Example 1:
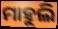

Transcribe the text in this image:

ମାହୁଲି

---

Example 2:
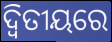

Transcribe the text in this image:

ଦ୍ଵିତୀୟରେ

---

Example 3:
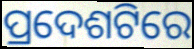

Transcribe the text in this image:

ପ୍ରଦେଶଟିରେ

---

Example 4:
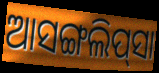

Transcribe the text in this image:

ଆସଙ୍ଗଲିପ୍‌ସା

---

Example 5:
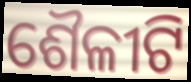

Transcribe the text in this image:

ଶୈଳୀଟି